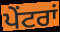
ਪੇਂਟਰਾਂ